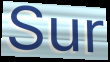
Sur